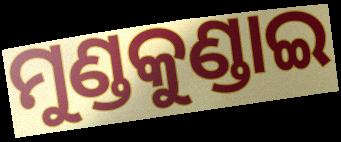
ମୁଣ୍ଡକୁଣ୍ଡାଇ